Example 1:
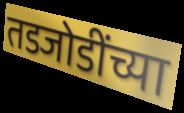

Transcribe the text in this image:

तडजोडींच्या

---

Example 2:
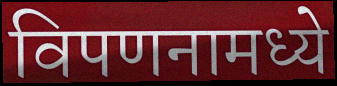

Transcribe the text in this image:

विपणनामध्ये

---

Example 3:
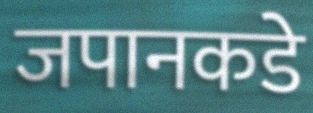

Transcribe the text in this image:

जपानकडे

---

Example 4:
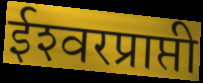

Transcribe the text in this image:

ईश्वरप्राप्ती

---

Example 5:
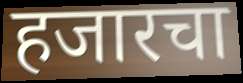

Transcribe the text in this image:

हजारचा